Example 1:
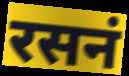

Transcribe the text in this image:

रसनं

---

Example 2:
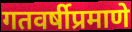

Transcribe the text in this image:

गतवर्षीप्रमाणे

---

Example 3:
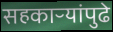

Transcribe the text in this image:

सहकाऱ्यांपुढे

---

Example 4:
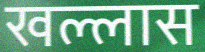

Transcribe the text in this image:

खल्लास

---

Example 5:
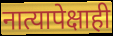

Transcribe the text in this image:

नात्यापेक्षाही